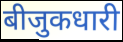
बीजुकधारी